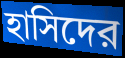
হাসিদের